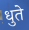
धुते